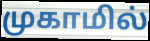
முகாமில்